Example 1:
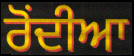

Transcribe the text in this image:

ਰੋਂਦੀਆ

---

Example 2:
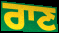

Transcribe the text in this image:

ਰਾਣ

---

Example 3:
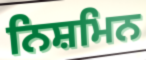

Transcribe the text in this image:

ਨਿਸ਼ਮਿਨ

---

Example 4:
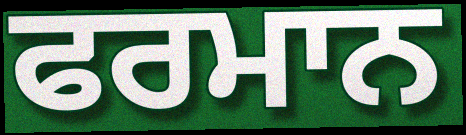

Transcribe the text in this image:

ਫਰਮਾਨ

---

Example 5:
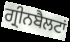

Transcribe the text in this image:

ਗ੍ਰੀਨਬੈਲਟਾਂ